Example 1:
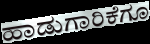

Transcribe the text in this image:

ಹಾಡುಗಾರಿಕೆಗೂ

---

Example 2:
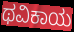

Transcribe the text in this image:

ಥವಿಕಾಯ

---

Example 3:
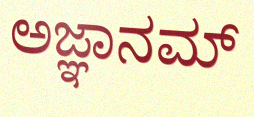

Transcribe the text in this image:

ಅಜ್ಞಾನಮ್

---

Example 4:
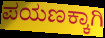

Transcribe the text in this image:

ಪಯಣಕ್ಕಾಗಿ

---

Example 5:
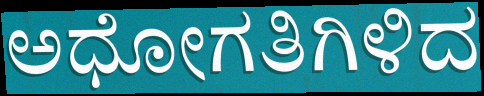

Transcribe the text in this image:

ಅಧೋಗತಿಗಿಳಿದ